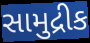
સામુદ્રીક